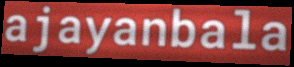
ajayanbala